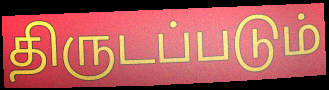
திருடப்படும்